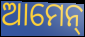
ଆମେନ୍